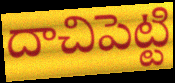
దాచిపెట్టి